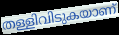
തള്ളിവിടുകയാണ്